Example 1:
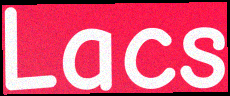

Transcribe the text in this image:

Lacs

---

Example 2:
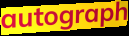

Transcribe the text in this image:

autograph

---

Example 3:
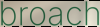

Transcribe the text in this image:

broach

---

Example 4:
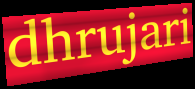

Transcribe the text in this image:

dhrujari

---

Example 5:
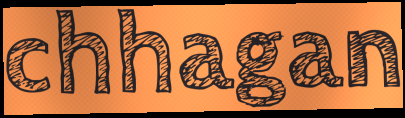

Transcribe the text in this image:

chhagan